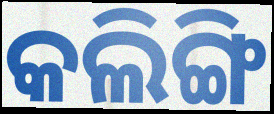
କଲିଙ୍ଗି